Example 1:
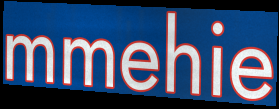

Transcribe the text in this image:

mmehie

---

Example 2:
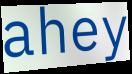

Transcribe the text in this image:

ahey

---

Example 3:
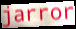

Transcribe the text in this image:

jarror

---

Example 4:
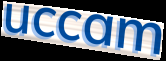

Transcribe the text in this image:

uccam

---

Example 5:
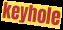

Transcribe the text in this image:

keyhole